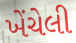
ખેંચેલી